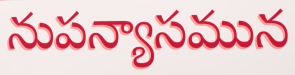
నుపన్యాసమున